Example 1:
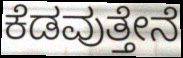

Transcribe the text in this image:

ಕೆಡವುತ್ತೇನೆ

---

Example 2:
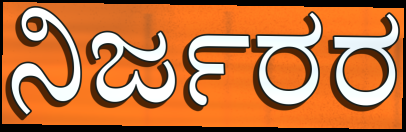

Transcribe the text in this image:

ನಿರ್ಜರರ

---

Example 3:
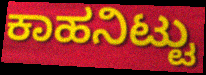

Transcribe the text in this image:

ಕಾಹನಿಟ್ಟು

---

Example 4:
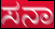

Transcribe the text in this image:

ಸನಾ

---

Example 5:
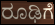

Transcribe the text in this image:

ರೂಢಿಗೆ